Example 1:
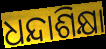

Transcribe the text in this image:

ଧନ୍ଦାଶିକ୍ଷା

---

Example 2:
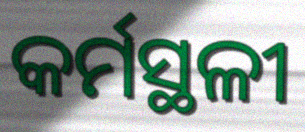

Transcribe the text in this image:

କର୍ମସ୍ଥଳୀ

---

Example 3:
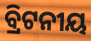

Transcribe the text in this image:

ବ୍ରିଟନୀୟ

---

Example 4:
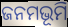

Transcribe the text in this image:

ଜନମଭୂମି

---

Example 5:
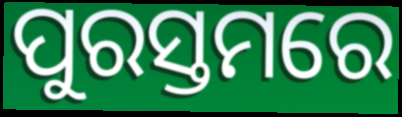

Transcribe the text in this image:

ପୁରସ୍ତମରେ